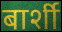
बार्शी